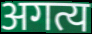
अगत्य